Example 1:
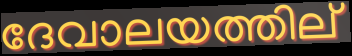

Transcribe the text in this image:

ദേവാലയത്തില്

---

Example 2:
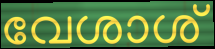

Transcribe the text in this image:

വേശാശ്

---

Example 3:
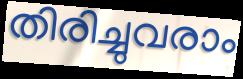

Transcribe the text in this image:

തിരിച്ചുവരാം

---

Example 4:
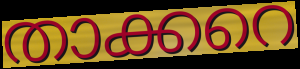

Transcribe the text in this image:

താക്കറെ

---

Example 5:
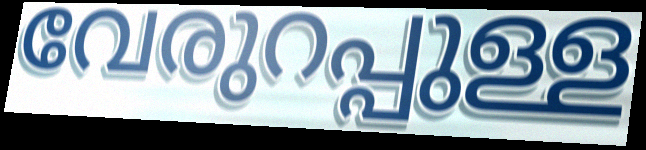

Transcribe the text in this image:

വേരുറപ്പുള്ള